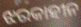
ଝରକାହୀନ